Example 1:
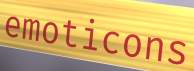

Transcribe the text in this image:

emoticons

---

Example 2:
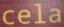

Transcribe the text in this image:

cela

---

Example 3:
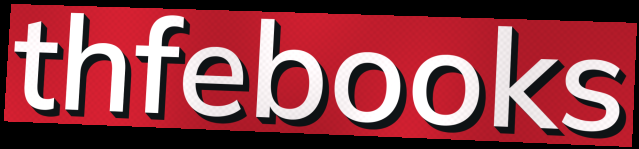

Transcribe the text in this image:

thfebooks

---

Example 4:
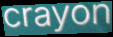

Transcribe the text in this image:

crayon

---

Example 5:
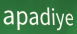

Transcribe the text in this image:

apadiye